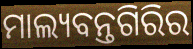
ମାଲ୍ୟବନ୍ତଗିରିର